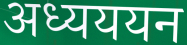
अध्यययन